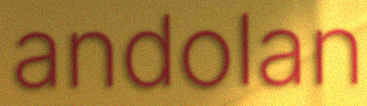
andolan